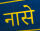
नासे